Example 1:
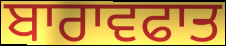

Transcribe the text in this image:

ਬਾਰਾਵਫਾਤ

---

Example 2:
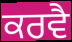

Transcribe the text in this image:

ਕਰਵੈ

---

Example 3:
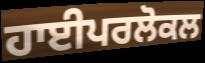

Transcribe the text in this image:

ਹਾਈਪਰਲੋਕਲ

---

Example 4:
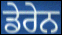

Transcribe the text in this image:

ਡੇਰੇਨ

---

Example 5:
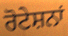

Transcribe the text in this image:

ਰੋਟੇਸ਼ਨਾਂ